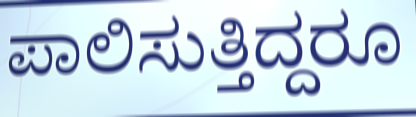
ಪಾಲಿಸುತ್ತಿದ್ದರೂ